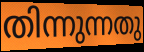
തിന്നുന്നതു